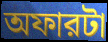
অফারটা